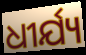
ଧୀର୍ଯ୍ୟ